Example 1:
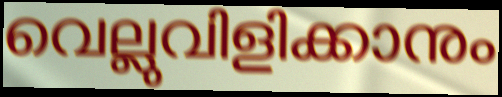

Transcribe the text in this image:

വെല്ലുവിളിക്കാനും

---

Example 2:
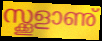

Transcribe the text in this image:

സ്ക്കൂളാണു്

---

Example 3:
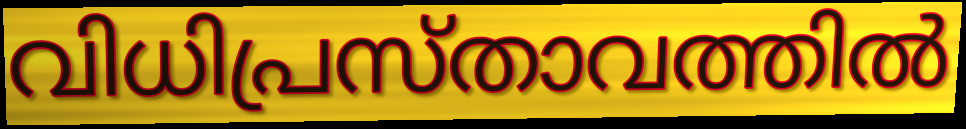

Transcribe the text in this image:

വിധിപ്രസ്താവത്തിൽ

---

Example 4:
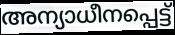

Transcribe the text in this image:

അന്യാധീനപ്പെട്ട്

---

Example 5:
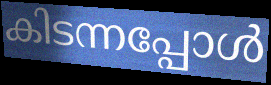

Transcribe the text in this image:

കിടന്നപ്പോൾ